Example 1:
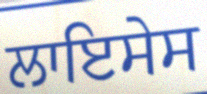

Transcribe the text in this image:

ਲਾਇਸੇਸ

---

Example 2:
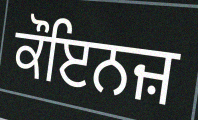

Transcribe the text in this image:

ਕੌਇਨਜ਼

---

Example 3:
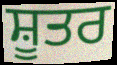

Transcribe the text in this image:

ਸ਼ੂਤਰ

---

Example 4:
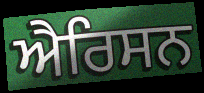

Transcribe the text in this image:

ਐਰਿਸਨ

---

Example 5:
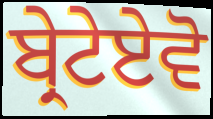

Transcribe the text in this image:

ਬ੍ਰੇਟੇਏਵੋ